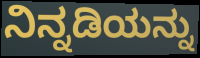
ನಿನ್ನಡಿಯನ್ನು